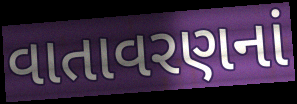
વાતાવરણનાં